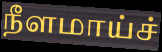
நீளமாய்ச்